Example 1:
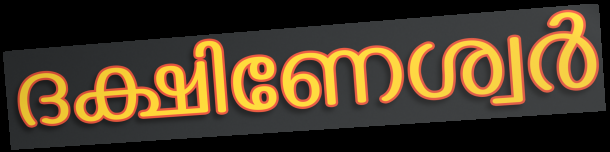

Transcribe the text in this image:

ദക്ഷിണേശ്വർ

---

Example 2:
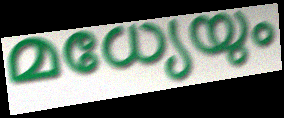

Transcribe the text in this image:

മധ്യേയും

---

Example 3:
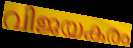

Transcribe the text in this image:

വിജയകരം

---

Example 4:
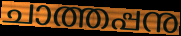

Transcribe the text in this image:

ചാത്തപ്പനു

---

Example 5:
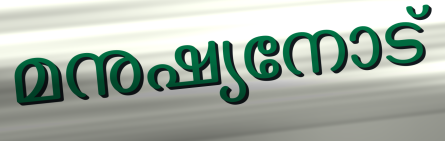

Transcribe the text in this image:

മനുഷ്യനോട്